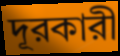
দূরকারী